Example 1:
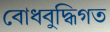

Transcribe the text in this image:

বোধবুদ্ধিগত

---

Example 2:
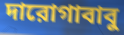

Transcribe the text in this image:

দারোগাবাবু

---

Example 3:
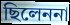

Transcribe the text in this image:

ছিলেননা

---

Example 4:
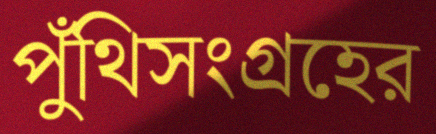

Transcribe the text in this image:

পুঁথিসংগ্রহের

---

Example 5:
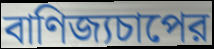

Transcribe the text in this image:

বাণিজ্যচাপের